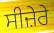
ਸੀਜ਼ੇਰੇ